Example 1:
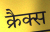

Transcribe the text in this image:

क्रैक्स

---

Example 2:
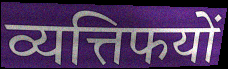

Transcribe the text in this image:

व्यत्तिफयों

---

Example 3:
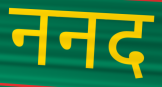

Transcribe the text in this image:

ननद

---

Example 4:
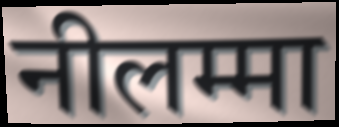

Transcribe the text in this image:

नीलम्मा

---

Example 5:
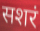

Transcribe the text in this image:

सशरं